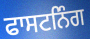
ਫਾਸਟਨਿੰਗ